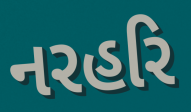
નરહરિ